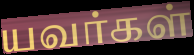
யவர்கள்